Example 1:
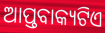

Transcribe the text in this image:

ଆପ୍ତବାକ୍ୟଟିଏ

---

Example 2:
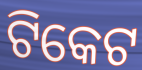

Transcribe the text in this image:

ଟିକେଟ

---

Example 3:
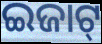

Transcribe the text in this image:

ଇଜାଟ୍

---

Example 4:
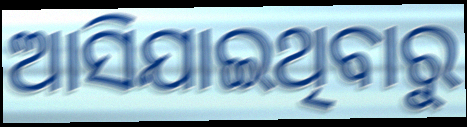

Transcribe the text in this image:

ଆସିଯାଇଥିବାରୁ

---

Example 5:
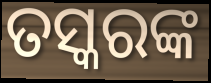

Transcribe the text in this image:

ତସ୍କରଙ୍କ